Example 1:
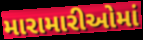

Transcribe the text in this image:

મારામારીઓમાં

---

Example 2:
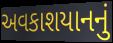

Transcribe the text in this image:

અવકાશયાનનું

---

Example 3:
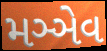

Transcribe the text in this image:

મઞ્ઞેવ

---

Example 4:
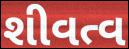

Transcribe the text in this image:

શીવત્વ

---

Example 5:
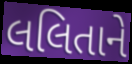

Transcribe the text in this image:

લલિતાને